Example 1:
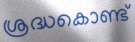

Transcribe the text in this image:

ശ്രദ്ധകൊണ്ട്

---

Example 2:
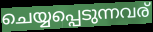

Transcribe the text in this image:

ചെയ്യപ്പെടുന്നവര്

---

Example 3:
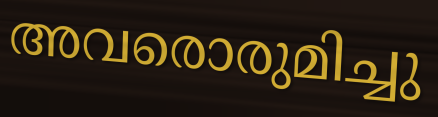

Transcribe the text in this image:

അവരൊരുമിച്ചു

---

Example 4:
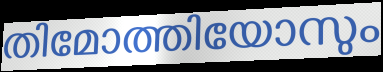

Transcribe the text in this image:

തിമോത്തിയോസും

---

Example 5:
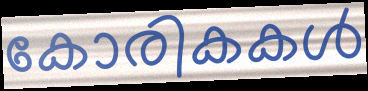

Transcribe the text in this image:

കോരികകൾ